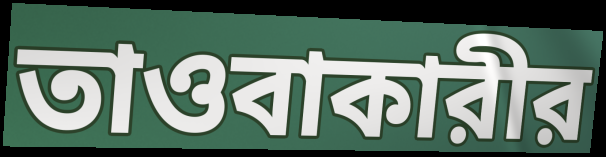
তাওবাকারীর